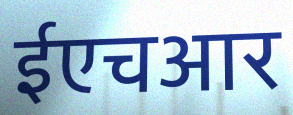
ईएचआर